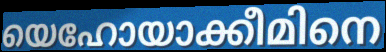
യെഹോയാക്കീമിനെ